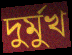
দুর্মুখ